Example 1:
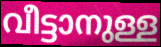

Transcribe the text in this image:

വീട്ടാനുള്ള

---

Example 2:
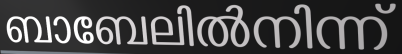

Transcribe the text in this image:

ബാബേലിൽനിന്ന്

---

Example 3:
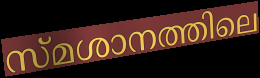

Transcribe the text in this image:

സ്മശാനത്തിലെ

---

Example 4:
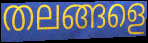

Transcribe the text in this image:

തലങ്ങളെ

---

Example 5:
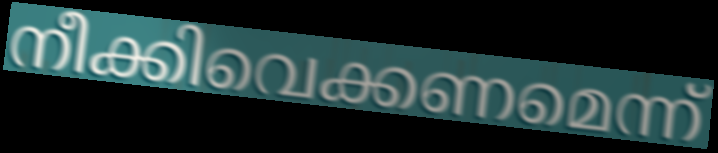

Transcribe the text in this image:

നീക്കിവെക്കണമെന്ന്